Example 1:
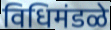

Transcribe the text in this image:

विधिमंडळे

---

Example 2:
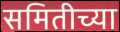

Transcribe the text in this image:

समितीच्या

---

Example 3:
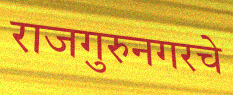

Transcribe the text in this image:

राजगुरुनगरचे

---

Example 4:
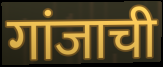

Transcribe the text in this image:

गांजाची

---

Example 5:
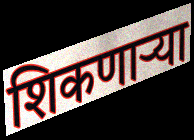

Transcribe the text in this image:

शिकणाऱ्या